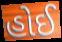
હોઈ